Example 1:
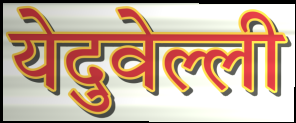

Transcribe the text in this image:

येदुवेल्ली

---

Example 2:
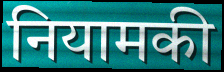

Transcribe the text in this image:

नियामकी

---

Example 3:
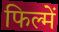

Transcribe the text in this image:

फिल्‍में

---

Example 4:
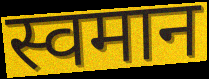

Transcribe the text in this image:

स्वमान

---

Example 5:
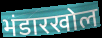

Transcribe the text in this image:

भंडारखोल